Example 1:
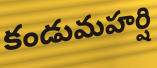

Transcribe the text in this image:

కండుమహర్షి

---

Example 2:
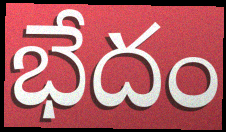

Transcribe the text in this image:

భేదం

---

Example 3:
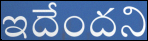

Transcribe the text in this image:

ఇదేందని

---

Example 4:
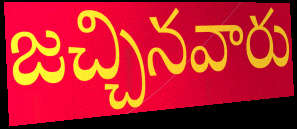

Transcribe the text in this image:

జచ్చినవారు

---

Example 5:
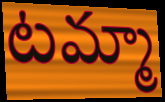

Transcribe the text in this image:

టమ్మా